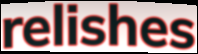
relishes